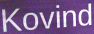
Kovind